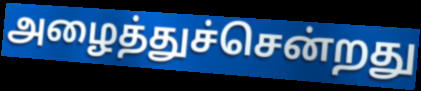
அழைத்துச்சென்றது